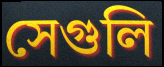
সেগুলি